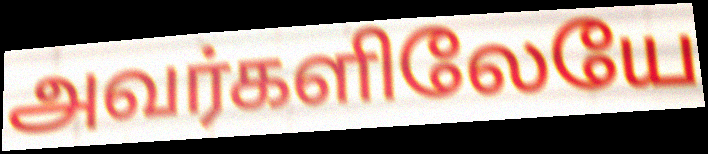
அவர்களிலேயே